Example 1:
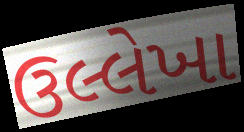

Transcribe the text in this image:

ઉલ્લેખા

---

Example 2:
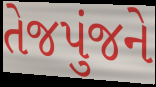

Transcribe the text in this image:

તેજપુંજને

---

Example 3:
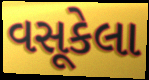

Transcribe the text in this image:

વસૂકેલા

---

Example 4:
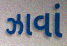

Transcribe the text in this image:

ઝાવાં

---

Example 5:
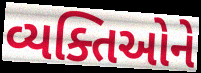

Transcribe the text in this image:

વ્યક્તિઓને